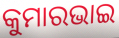
କୁମାରଭାଇ